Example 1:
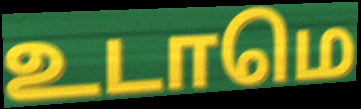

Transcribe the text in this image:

உடாமெ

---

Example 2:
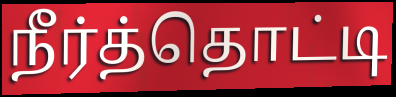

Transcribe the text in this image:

நீர்த்தொட்டி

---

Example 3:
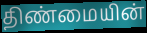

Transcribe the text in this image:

திண்மையின்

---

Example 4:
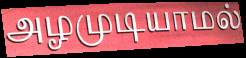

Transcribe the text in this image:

அழமுடியாமல்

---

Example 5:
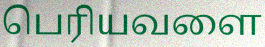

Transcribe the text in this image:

பெரியவளை